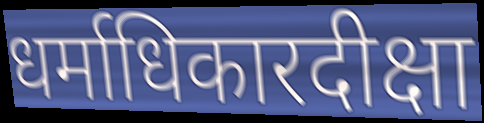
धर्माधिकारदीक्षा